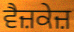
ਵੈਜ਼ਕੇਜ਼